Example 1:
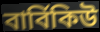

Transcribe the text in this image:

বাৰ্বিকিউ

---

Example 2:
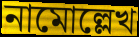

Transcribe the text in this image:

নামোল্লেখ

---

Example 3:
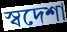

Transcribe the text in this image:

স্বদেশা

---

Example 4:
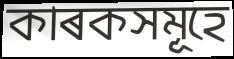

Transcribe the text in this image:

কাৰকসমূহে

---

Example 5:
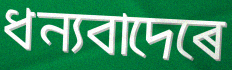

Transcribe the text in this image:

ধন্যবাদেৰে